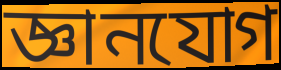
জ্ঞানযোগ